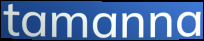
tamanna